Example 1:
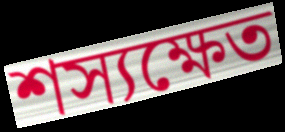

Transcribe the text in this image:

শস্যক্ষেত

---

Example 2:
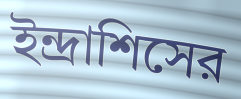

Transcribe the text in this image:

ইন্দ্রাশিসের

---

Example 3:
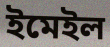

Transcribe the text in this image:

ইমেইল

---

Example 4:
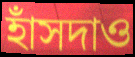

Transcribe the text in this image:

হাঁসদাও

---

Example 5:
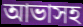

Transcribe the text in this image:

আভাসহ